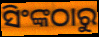
ସିଂଙ୍କଠାରୁ